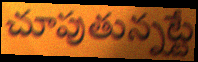
చూపుతున్నట్టే